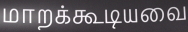
மாறக்கூடியவை